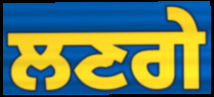
ਲਣਗੇ